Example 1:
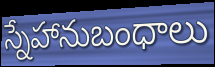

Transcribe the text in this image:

స్నేహానుబంధాలు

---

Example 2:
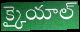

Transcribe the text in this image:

క్కైయాల్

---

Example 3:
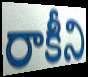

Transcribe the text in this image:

రాకీని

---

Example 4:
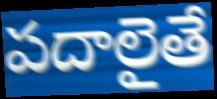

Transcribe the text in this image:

పదాలైతే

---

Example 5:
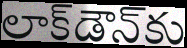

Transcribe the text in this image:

లాక్‌డౌన్‌కు